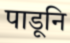
पाडूनि